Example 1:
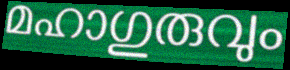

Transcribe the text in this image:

മഹാഗുരുവും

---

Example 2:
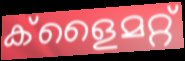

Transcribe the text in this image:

ക്ളൈമറ്റ്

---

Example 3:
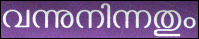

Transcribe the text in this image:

വന്നുനിന്നതും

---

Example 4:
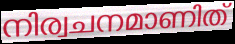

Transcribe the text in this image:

നിര്വചനമാണിത്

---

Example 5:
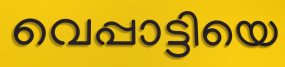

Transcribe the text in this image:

വെപ്പാട്ടിയെ